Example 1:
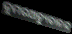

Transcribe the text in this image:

କୁମରଅଚ୍ୟୁତାନନ୍ଦ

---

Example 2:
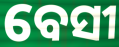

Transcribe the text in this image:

ବେସୀ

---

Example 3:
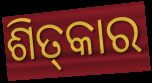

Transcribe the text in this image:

ଶିତ୍‍କାର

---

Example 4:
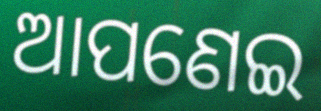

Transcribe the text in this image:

ଆପଣେଇ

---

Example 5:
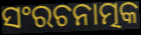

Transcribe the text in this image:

ସଂରଚନାତ୍ମକ